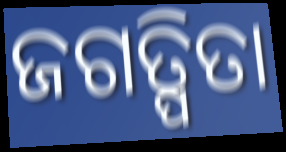
ଜଗତ୍ପିତା